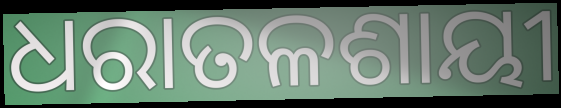
ଧରାତଳଶାୟୀ